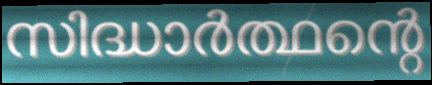
സിദ്ധാർത്ഥന്റെ